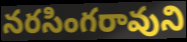
నరసింగరావుని